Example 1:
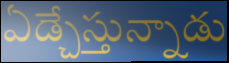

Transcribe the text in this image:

ఏడ్చేస్తున్నాడు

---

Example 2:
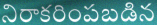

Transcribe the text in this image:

నిరాకరింపబడిన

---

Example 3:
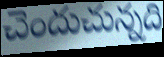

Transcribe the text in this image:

చెందుచున్నది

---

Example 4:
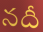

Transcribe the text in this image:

నదీ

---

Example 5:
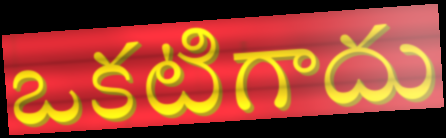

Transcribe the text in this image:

ఒకటిగాదు